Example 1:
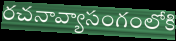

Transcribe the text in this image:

రచనావ్యాసంగంలోకి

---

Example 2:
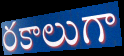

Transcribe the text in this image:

రకాలుగా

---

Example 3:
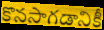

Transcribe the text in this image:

కొనసాగడానికీ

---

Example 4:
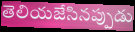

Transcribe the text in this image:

తెలియజేసినప్పుడు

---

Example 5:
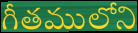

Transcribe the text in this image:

గీతములోని